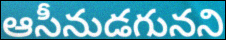
ఆసీనుడగునని